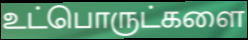
உட்பொருட்களை